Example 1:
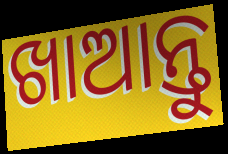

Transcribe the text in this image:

ଖାଆନ୍ତୁ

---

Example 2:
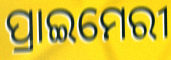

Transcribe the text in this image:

ପ୍ରାଇମେରୀ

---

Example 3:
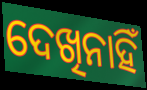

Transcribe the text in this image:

ଦେଖିନାହିଁ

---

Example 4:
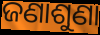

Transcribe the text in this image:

ଜଣାଶୁଣା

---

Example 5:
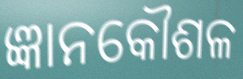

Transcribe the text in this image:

ଜ୍ଞାନକୌଶଳ